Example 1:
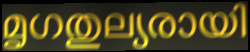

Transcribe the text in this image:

മൃഗതുല്യരായി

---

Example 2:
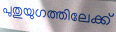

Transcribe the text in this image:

പുതുയുഗത്തിലേക്ക്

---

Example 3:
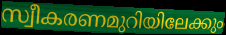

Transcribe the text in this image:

സ്വീകരണമുറിയിലേക്കും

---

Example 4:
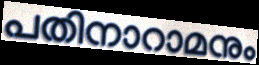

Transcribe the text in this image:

പതിനാറാമനും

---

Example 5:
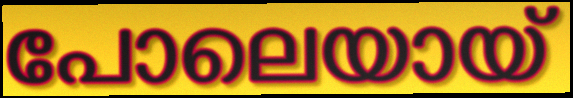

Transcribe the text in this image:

പോലെയായ്